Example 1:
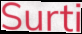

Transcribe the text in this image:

Surti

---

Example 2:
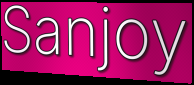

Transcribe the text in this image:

Sanjoy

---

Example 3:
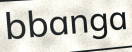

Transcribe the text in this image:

bbanga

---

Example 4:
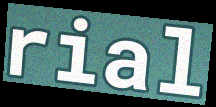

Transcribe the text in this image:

rial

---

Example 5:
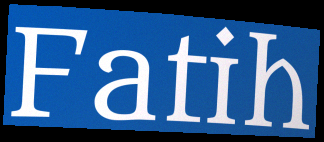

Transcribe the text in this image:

Fatih